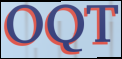
OQT